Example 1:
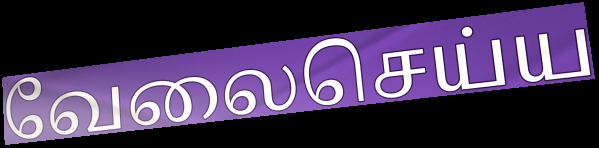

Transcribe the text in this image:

வேலைசெய்ய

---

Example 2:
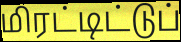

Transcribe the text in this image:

மிரட்டிட்டுப்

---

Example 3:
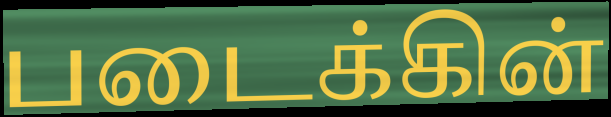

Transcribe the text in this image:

படைக்கின்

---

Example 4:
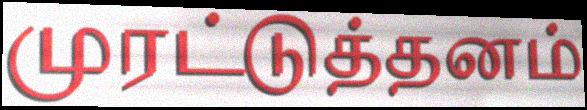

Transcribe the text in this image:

முரட்டுத்தனம்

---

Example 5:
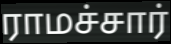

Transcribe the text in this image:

ராமச்சார்